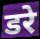
डरे